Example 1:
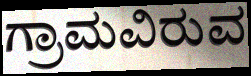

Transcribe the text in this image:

ಗ್ರಾಮವಿರುವ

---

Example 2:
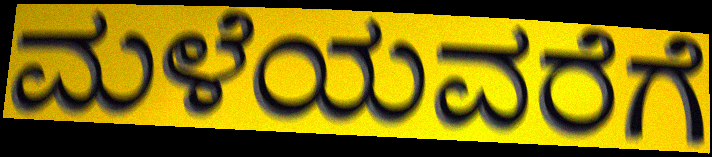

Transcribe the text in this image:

ಮಳೆಯವರೆಗೆ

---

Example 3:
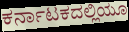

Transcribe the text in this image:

ಕರ್ನಾಟಕದಲ್ಲಿಯೂ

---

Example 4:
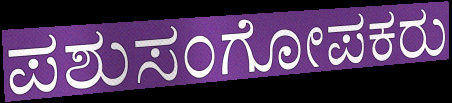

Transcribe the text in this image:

ಪಶುಸಂಗೋಪಕರು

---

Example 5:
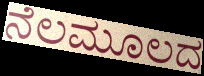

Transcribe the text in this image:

ನೆಲಮೂಲದ